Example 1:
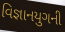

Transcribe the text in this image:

વિજ્ઞાનયુગની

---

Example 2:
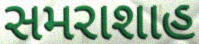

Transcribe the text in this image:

સમરાશાહ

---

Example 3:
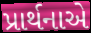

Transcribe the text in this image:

પ્રાર્થનાએ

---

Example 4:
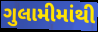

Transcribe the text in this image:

ગુલામીમાંથી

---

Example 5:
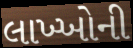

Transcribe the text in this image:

લાખ્ખોની